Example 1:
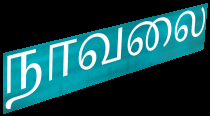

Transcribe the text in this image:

நாவலை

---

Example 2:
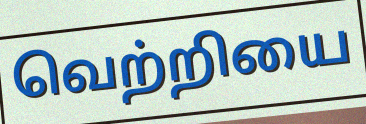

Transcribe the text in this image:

வெற்றியை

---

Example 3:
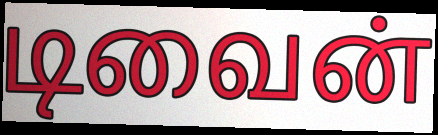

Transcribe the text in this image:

டிவைன்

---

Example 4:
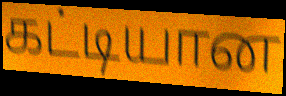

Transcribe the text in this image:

கட்டியான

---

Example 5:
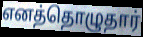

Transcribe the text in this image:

எனத்தொழுதார்